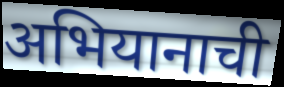
अभियानाची